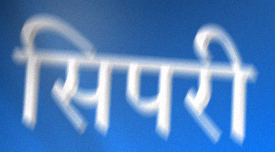
सिपरी